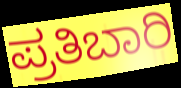
ಪ್ರತಿಬಾರಿ